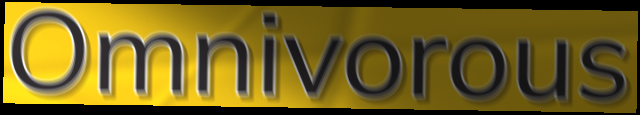
Omnivorous